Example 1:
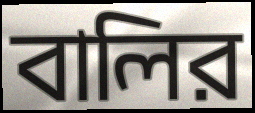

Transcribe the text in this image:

বালির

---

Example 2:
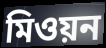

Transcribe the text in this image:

মিওয়ন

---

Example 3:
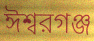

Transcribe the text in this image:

ঈশ্বরগঞ্জ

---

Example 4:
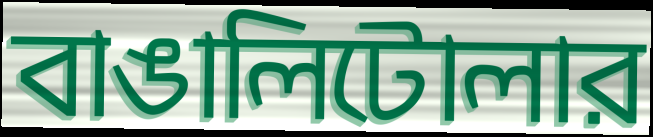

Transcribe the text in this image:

বাঙালিটোলার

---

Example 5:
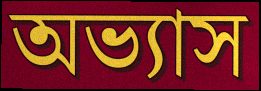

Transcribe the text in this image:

অভ্যাস